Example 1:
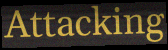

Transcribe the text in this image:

Attacking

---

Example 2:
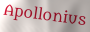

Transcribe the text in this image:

Apollonius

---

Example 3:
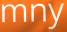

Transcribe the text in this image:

mny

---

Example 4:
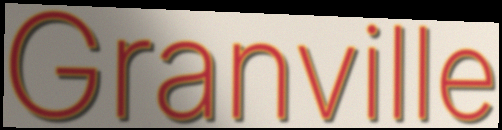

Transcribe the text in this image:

Granville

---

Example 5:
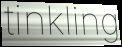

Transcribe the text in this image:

tinkling